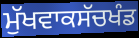
ਮੁੱਖਵਾਕਸੱਚਖੰਡ